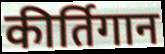
कीर्तिगान